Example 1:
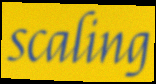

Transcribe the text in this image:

scaling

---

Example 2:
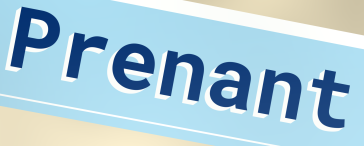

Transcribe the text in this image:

Prenant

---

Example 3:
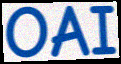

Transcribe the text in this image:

OAI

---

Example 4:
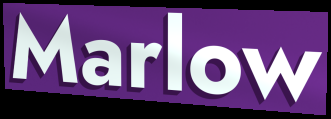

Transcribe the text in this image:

Marlow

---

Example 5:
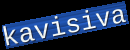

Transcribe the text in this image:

kavisiva